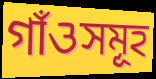
গাঁওসমূহ